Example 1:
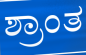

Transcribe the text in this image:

ಶ್ರಾಂತ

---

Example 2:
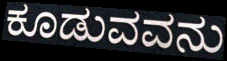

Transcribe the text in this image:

ಕೂಡುವವನು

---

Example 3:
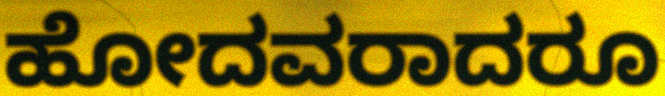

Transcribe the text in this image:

ಹೋದವರಾದರೂ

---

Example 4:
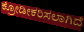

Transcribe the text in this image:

ಕ್ರೋಡೀಕರಿಸಲಾಗಿದೆ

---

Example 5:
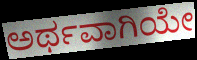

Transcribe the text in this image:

ಅರ್ಥವಾಗಿಯೇ